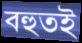
বহুতই